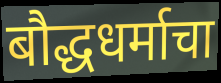
बौद्धधर्माचा